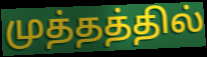
முத்தத்தில்